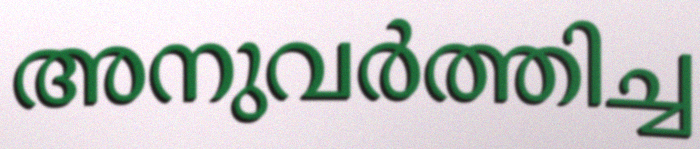
അനുവർത്തിച്ച